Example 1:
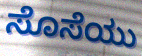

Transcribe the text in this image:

ಸೊಸೆಯು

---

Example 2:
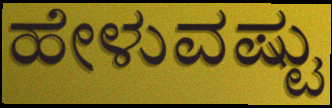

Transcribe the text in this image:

ಹೇಳುವಷ್ಟು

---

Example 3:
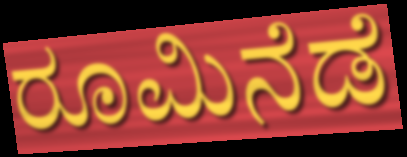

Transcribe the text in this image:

ರೂಮಿನೆಡೆ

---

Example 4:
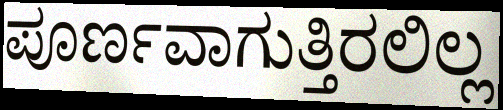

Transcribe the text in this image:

ಪೂರ್ಣವಾಗುತ್ತಿರಲಿಲ್ಲ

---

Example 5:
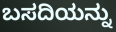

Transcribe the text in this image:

ಬಸದಿಯನ್ನು